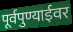
पूर्वपुण्याईवर